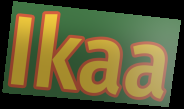
Ikaa